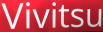
Vivitsu